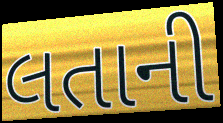
લતાની